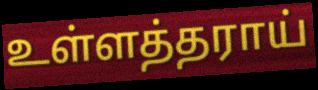
உள்ளத்தராய்